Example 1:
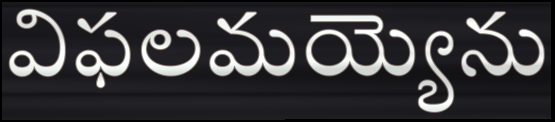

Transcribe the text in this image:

విఫలమయ్యెను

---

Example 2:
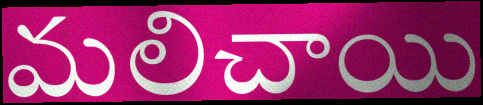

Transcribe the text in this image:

మలిచాయి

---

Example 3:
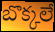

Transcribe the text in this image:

బొక్కలే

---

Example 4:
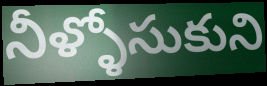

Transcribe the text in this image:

నీళ్ళోసుకుని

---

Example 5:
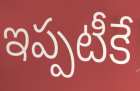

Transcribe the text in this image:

ఇప్పటీకే